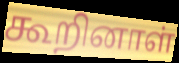
கூறினாள்